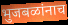
भुजबळांनाच